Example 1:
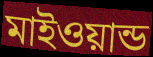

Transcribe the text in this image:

মাইওয়ান্ড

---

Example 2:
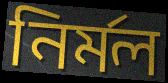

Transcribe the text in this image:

নির্মল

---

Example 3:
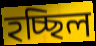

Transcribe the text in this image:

হচ্ছিল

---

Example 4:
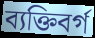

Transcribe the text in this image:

ব্যক্তিবর্গ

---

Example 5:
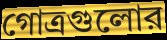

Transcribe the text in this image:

গোত্রগুলোর